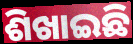
ଶିଖାଇଛି